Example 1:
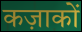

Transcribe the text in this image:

कज़ाकों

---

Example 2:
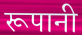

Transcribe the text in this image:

रूपानी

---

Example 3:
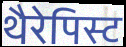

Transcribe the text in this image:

थैरेपिस्ट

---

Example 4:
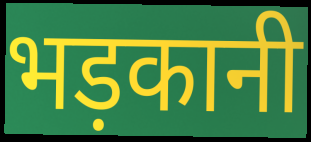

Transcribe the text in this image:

भड़कानी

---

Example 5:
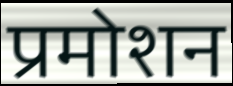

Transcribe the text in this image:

प्रमोशन